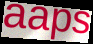
aaps